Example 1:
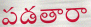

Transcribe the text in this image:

పడతారా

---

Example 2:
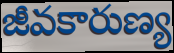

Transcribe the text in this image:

జీవకారుణ్య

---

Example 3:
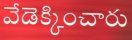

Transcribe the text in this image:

వేడెక్కించారు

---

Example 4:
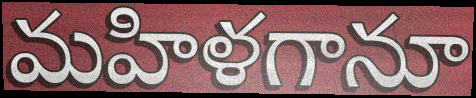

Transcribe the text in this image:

మహిళగానూ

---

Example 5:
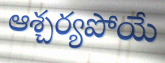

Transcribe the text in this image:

ఆశ్చర్యపోయే